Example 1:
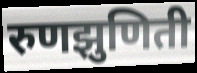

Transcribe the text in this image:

रुणझुणिती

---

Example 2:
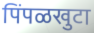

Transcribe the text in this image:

पिंपळखुटा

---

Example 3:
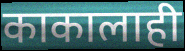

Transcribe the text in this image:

काकालाही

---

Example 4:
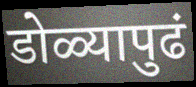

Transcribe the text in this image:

डोळ्यापुढं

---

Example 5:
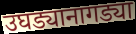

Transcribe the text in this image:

उघड्यानागड्या